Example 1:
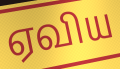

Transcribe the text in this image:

ஏவிய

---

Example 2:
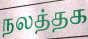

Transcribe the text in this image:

நலத்தக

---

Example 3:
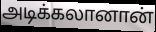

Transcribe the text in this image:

அடிக்கலானான்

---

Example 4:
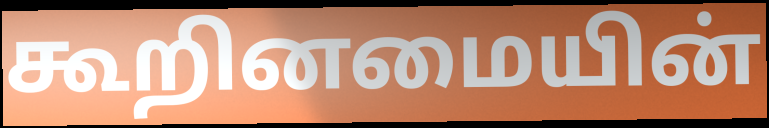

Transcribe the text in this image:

கூறினமையின்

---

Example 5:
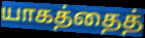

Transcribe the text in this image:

யாகத்தைத்